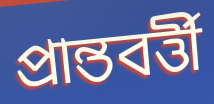
প্রান্তবর্ত্তী